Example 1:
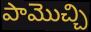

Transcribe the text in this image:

పామొచ్చి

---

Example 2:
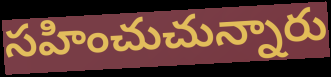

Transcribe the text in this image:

సహించుచున్నారు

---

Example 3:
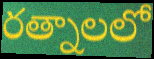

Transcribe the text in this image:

రత్నాలలో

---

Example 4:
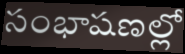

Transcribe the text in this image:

సంభాషణల్లో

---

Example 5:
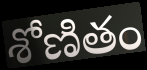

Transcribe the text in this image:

శోణితం